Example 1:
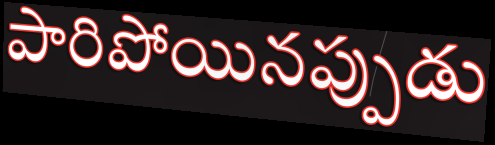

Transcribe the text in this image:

పారిపోయినప్పుడు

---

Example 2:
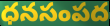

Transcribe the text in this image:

ధనసంపద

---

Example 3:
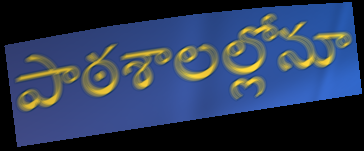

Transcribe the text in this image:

పాఠశాలల్లోనూ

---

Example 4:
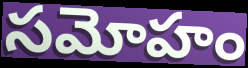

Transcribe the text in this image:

సమోహం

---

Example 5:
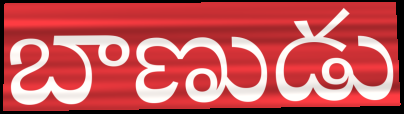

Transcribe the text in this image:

బాణుడు